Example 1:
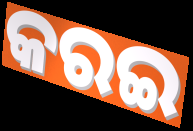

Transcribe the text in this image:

କରଇ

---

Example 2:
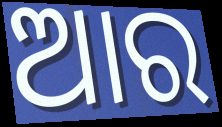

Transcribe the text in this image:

ଆର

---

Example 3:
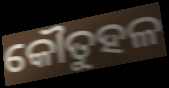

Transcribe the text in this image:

କୌତୁହଳ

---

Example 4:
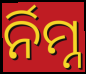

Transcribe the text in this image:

ର୍ନିମ୍ନ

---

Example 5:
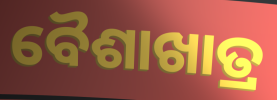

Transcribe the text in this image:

ବୈଶାଖାତ୍ର